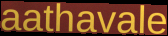
aathavale